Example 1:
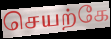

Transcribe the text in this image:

செயற்கே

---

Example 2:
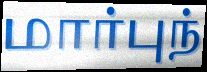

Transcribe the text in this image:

மார்புந்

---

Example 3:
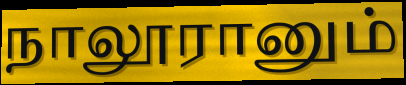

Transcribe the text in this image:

நாலூரானும்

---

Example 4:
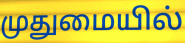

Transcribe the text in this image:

முதுமையில்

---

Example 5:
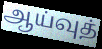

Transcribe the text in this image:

ஆய்வுத்